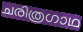
ചരിത്രഗാഥ